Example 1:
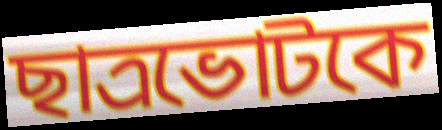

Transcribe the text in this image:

ছাত্রভোটকে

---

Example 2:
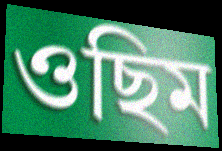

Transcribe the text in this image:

ওছিম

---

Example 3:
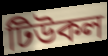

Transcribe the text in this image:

টিউকল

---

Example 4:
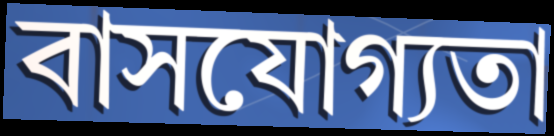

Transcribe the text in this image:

বাসযোগ্যতা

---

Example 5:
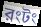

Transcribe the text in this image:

রংটং